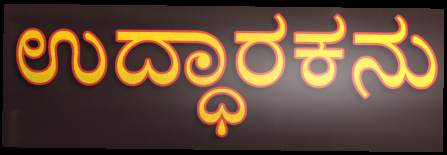
ಉದ್ಧಾರಕನು